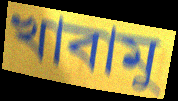
খাবামু